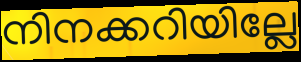
നിനക്കറിയില്ലേ